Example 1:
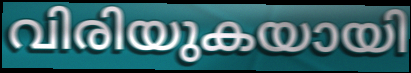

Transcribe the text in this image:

വിരിയുകയായി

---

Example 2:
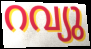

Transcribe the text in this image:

റവ്യു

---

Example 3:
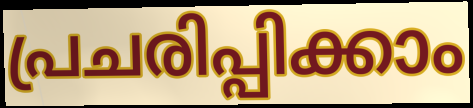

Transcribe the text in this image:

പ്രചരിപ്പിക്കാം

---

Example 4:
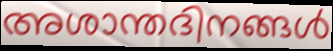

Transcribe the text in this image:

അശാന്തദിനങ്ങൾ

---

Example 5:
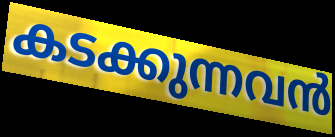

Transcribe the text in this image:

കടക്കുന്നവൻ